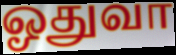
ஓதுவா